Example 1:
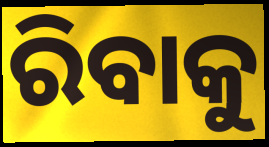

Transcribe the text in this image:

ରିବାକୁ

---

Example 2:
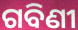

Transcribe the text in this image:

ଗବିଣୀ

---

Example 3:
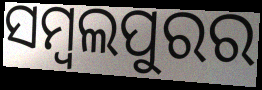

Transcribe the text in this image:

ସମ୍ୱଲପୁରର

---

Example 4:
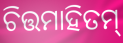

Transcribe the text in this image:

ଚିତ୍ତମାହିତମ୍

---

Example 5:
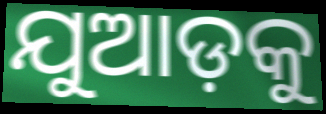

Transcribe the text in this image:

ଯୁଆଡ଼କୁ